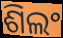
ଶିଲଂ